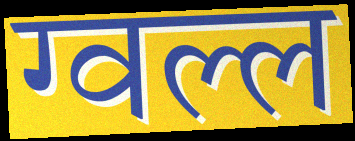
ग्वल्ल